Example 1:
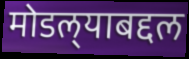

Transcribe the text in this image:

मोडल्याबद्दल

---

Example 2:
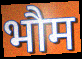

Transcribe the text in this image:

भौम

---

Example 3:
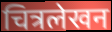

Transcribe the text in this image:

चित्रलेखन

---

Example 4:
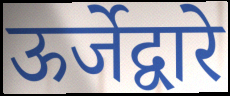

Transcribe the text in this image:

ऊर्जेद्वारे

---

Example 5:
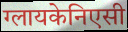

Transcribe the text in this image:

ग्लायकेनिएसी